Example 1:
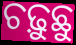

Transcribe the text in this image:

ଚଢ଼ୁଛୁ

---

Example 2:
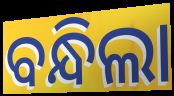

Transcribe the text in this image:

ବନ୍ଧିଲା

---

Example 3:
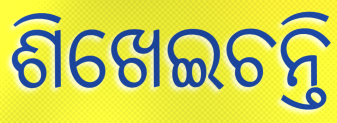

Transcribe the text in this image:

ଶିଖେଇଚନ୍ତି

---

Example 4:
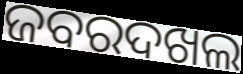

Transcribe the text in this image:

ଜବରଦଖଲ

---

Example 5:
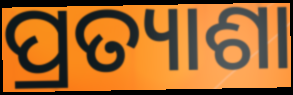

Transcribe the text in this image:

ପ୍ରତ୍ୟାଶା